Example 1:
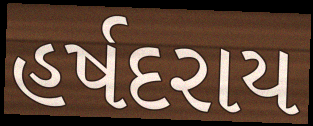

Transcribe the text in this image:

હર્ષદરાય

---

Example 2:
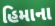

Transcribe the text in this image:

હિમાના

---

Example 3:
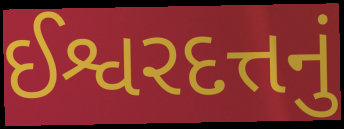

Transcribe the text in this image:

ઈશ્વરદત્તનું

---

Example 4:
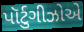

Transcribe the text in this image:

પૉર્ટુગીઝોએ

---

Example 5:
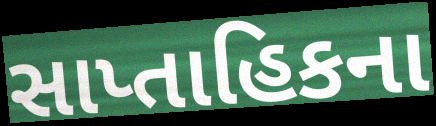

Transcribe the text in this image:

સાપ્તાહિકના